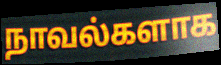
நாவல்களாக